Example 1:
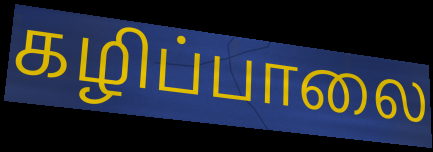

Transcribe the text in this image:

கழிப்பாலை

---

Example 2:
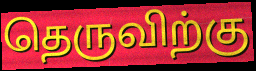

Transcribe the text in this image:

தெருவிற்கு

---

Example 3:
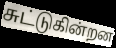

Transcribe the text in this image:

சுட்டுகின்றன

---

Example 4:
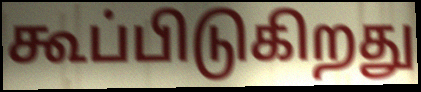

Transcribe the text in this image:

கூப்பிடுகிறது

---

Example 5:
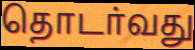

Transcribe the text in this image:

தொடர்வது